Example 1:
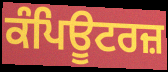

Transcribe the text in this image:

ਕੰਪਿਊਟਰਜ਼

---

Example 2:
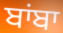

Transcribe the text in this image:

ਬਾਂਬਾ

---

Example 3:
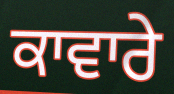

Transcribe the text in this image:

ਕਾਵਾਰੇ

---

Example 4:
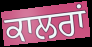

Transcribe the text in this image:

ਕਾਲਰਾਂ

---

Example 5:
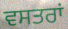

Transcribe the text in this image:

ਵਸਤਰਾਂ